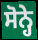
ਸੋਨ੍ਹੇ